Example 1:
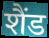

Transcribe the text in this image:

शैंड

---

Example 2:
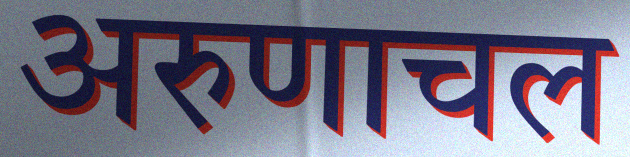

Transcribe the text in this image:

अरुणाचल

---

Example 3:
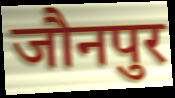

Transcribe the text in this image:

जौनपुर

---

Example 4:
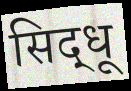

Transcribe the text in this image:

सिद्धू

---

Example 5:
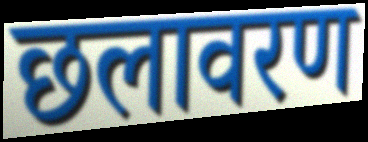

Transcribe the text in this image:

छलावरण